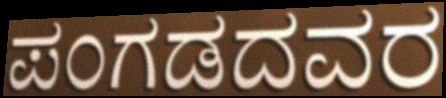
ಪಂಗಡದವರ